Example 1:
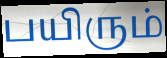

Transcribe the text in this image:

பயிரும்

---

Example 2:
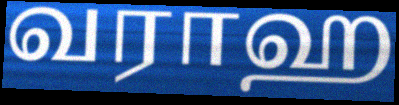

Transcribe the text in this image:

வராஹ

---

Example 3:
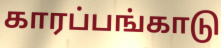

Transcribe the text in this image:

காரப்பங்காடு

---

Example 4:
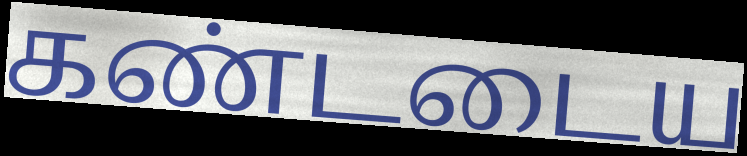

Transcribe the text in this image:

கண்டடைய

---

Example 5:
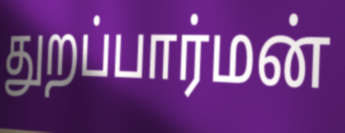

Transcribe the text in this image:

துறப்பார்மன்